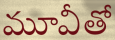
మూవీతో